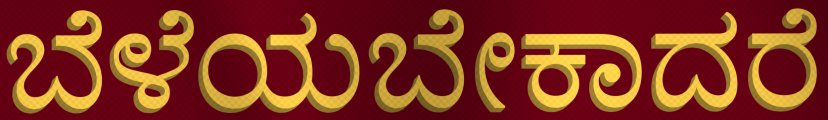
ಬೆಳೆಯಬೇಕಾದರೆ